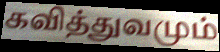
கவித்துவமும்